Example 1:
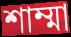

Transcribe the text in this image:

শাম্মা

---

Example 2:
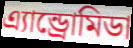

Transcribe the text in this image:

এ্যান্ড্রোমিডা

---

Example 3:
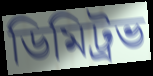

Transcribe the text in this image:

ডিমিট্রভ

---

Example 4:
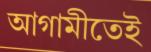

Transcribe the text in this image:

আগামীতেই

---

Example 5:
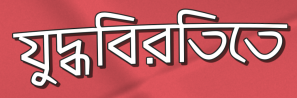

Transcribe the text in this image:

যুদ্ধবিরতিতে